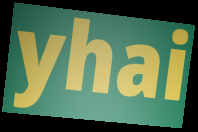
yhai